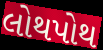
લોથપોથ